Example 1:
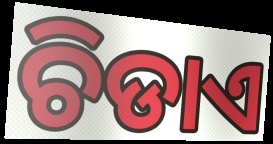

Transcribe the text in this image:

ଚିଡାଏ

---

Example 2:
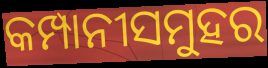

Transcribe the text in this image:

କମ୍ପାନୀସମୁହର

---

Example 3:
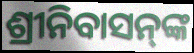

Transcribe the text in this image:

ଶ୍ରୀନିବାସନ୍‌ଙ୍କ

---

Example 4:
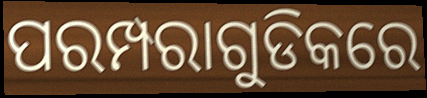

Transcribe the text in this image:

ପରମ୍ପରାଗୁଡିକରେ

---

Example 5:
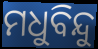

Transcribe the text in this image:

ମଧୁବିନ୍ଦୁ